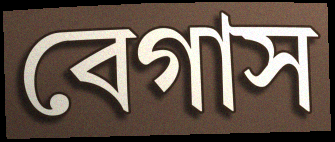
বেগাস